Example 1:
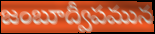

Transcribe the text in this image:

జంబూద్వీపమున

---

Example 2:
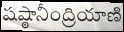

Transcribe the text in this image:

షష్ఠానీంద్రియాణి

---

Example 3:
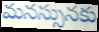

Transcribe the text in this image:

మనస్సునకు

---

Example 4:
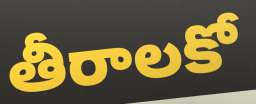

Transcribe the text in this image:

తీరాలకో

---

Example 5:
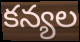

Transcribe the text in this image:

కన్యల